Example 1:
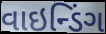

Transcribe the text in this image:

વાઇન્ડિંગ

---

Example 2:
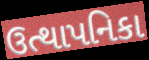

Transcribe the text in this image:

ઉત્થાપનિકા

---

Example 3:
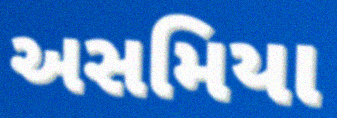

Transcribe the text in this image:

અસમિયા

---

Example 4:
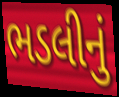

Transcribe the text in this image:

ભડલીનું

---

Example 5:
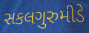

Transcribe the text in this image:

સકલગુરુમીડે